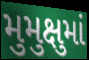
મુમુક્ષુમાં